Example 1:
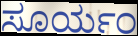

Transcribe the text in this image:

ಸೂರ್ಯಂ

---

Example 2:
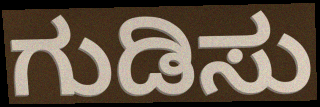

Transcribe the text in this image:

ಗುಡಿಸು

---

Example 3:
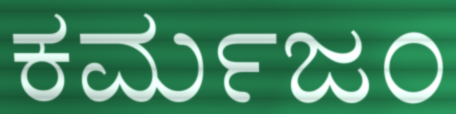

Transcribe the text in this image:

ಕರ್ಮಜಂ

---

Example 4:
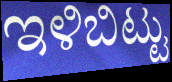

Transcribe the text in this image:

ಇಳಿಬಿಟ್ಟು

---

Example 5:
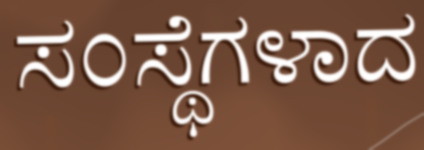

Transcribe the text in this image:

ಸಂಸ್ಥೆಗಳಾದ